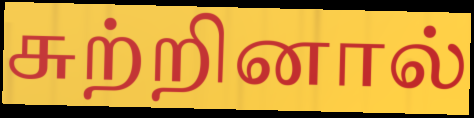
சுற்றினால்